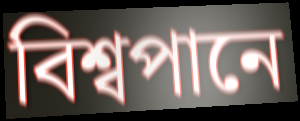
বিশ্বপানে